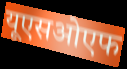
यूएसओएफ